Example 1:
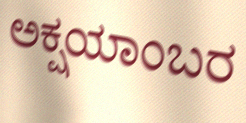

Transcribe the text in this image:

ಅಕ್ಷಯಾಂಬರ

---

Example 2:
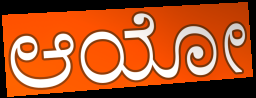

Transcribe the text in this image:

ಆಯೋ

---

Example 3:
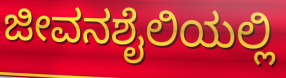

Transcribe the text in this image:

ಜೀವನಶೈಲಿಯಲ್ಲಿ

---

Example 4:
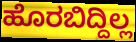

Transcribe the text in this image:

ಹೊರಬಿದ್ದಿಲ್ಲ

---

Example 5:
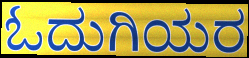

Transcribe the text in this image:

ಓದುಗಿಯರ